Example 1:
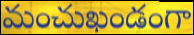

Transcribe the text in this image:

మంచుఖండంగా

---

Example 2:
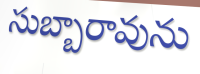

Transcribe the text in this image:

సుబ్బారావును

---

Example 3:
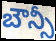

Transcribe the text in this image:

బౌన్సీ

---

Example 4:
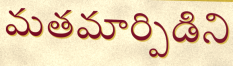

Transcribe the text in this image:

మతమార్పిడిని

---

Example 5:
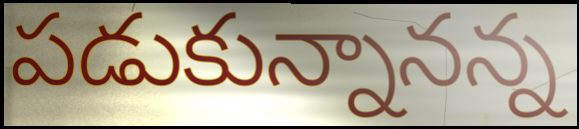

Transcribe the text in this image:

పడుకున్నానన్న